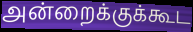
அன்றைக்குக்கூட